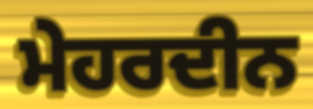
ਮੇਹਰਦੀਨ